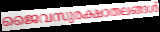
ജൈവസുരക്ഷാതലങ്ങൾ